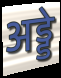
अड्डे